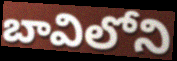
బావిలోని